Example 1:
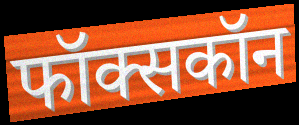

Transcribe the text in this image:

फॉक्सकॉन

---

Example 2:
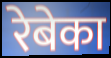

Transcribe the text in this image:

रेबेका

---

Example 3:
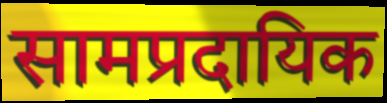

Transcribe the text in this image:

सामप्रदायिक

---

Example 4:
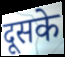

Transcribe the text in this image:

दूसके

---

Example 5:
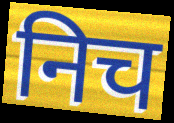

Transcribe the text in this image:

निच